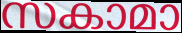
സകാമാ